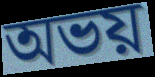
অভয়